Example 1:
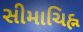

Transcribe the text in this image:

સીમાચિહ્ન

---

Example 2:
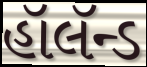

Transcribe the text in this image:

હૉલૅન્ડ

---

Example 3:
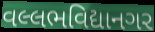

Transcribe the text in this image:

વલ્લભવિદ્યાનગર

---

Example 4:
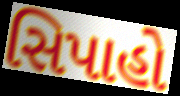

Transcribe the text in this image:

સિપાહો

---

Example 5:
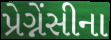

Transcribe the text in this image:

પ્રેગ્નેંસીના